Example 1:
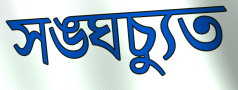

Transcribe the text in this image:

সঙ্ঘচ্যুত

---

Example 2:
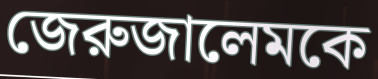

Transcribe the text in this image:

জেরুজালেমকে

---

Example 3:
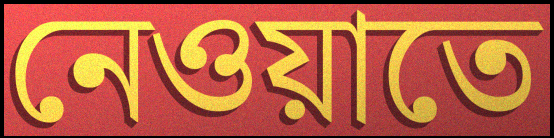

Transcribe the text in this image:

নেওয়াতে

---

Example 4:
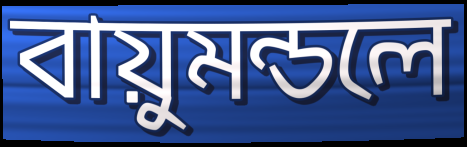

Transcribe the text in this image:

বায়ুমন্ডলে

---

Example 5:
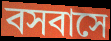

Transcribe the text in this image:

বসবাসে